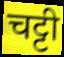
चट्टी